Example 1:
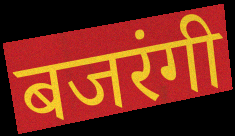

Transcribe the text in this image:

बजरंगी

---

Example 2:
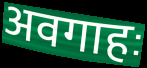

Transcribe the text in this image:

अवगाहः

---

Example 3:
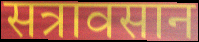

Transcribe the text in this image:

सत्रावसान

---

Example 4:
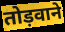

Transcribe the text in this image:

तोड़वाने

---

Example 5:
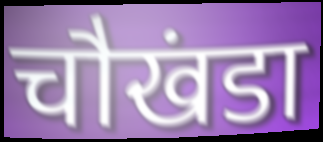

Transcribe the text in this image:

चौखंडा